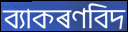
ব্যাকৰণবিদ